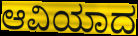
ಆವಿಯಾದ